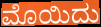
ಮೊಯಿದು